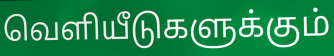
வெளியீடுகளுக்கும்